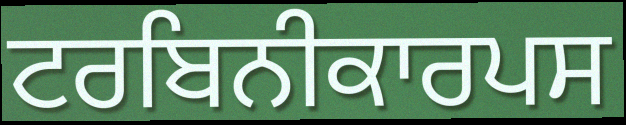
ਟਰਬਿਨੀਕਾਰਪਸ